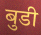
बुडी